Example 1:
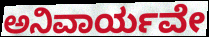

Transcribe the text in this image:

ಅನಿವಾರ್ಯವೇ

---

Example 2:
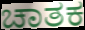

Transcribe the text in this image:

ಚಾತಕ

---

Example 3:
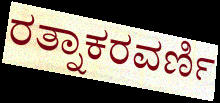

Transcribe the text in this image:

ರತ್ನಾಕರವರ್ಣಿ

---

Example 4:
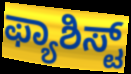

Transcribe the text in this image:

ಫ್ಯಾಶಿಸ್ಟ್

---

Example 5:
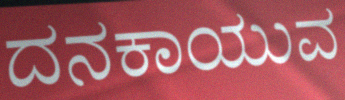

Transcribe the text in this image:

ದನಕಾಯುವ